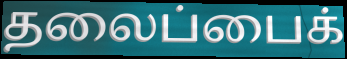
தலைப்பைக்